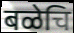
बळेचि